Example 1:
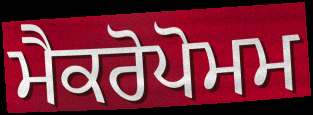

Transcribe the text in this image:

ਮੈਕਰੋਪੋਮਮ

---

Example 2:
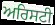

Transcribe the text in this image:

ਅਰਿਸਟੀ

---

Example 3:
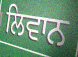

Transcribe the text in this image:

ਲਿਵਾਨ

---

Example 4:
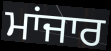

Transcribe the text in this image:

ਮਾਂਜਾਰ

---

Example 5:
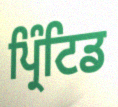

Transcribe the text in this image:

ਪ੍ਰਿੰਟਿਡ